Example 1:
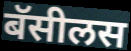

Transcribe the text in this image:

बॅसीलस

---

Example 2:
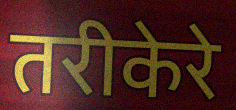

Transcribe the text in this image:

तरीकेरे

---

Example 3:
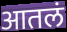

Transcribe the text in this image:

आतलं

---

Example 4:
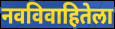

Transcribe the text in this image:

नवविवाहितेला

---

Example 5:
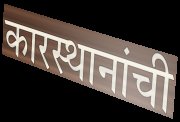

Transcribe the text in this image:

कारस्थानांची